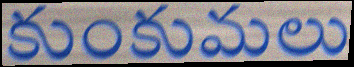
కుంకుమలు